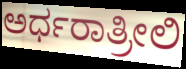
ಅರ್ಧರಾತ್ರೀಲಿ